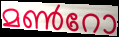
മൺറോ